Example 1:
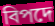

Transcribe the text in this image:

বিপদে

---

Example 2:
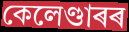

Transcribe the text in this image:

কেলেণ্ডাৰৰ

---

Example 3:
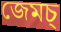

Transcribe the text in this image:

জেমচ্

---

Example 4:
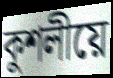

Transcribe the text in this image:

কুশলীয়ে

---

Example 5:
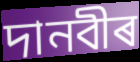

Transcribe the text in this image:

দানবীৰ